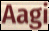
Aagi